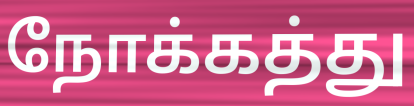
நோக்கத்து